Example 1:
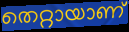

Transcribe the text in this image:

തെറ്റായാണ്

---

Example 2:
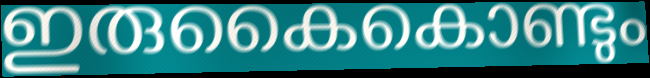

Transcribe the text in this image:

ഇരുകൈകൊണ്ടും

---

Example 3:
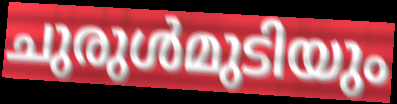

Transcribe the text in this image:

ചുരുൾമുടിയും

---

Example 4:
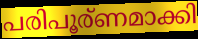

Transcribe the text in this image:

പരിപൂര്ണമാക്കി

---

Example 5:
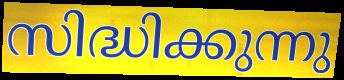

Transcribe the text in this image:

സിദ്ധിക്കുന്നു